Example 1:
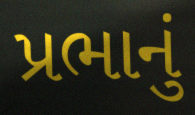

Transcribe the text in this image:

પ્રભાનું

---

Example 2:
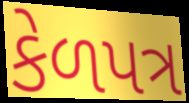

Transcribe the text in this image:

કેળપત્ર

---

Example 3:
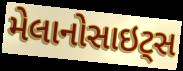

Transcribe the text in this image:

મેલાનોસાઇટ્સ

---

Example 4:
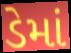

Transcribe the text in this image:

ડેમાં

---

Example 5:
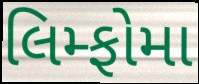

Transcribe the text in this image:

લિમ્ફોમા